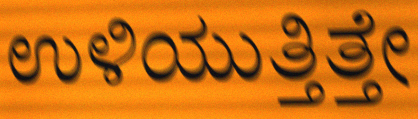
ಉಳಿಯುತ್ತಿತ್ತೇ